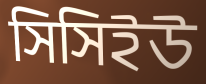
সিসিইউ